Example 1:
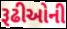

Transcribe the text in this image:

રૂઢીઓની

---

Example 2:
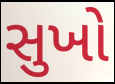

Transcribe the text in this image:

સુખો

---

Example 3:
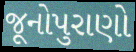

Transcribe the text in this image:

જૂનોપુરાણો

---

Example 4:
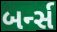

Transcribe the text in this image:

બર્ન્સ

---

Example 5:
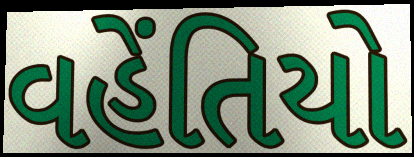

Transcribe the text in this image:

વહેંતિયો